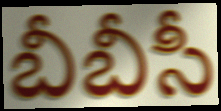
బీబీసీ